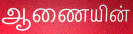
ஆணையின்